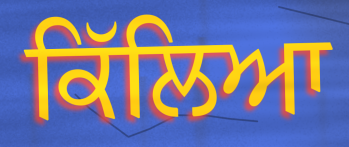
ਕਿੱਲਿਆ